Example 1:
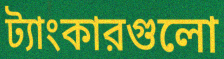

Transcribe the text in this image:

ট্যাংকারগুলো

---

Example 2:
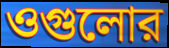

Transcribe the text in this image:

ওগুলোর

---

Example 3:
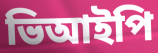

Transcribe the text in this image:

ভিআইপি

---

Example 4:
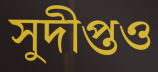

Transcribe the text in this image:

সুদীপ্তও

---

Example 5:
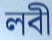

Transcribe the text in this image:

লবী